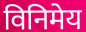
विनिमेय